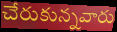
చేరుకున్నవారు